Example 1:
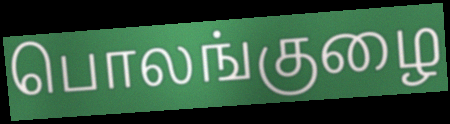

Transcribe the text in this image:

பொலங்குழை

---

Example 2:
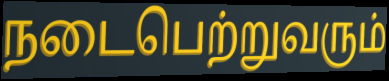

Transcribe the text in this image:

நடைபெற்றுவரும்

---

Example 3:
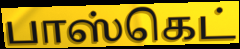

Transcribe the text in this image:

பாஸ்கெட்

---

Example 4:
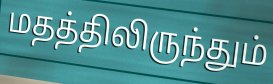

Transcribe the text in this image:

மதத்திலிருந்தும்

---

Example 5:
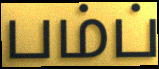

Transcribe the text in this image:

பம்ப்